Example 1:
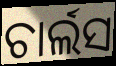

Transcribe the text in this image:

ଚାର୍ଲସ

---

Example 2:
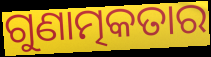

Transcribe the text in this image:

ଗୁଣାତ୍ମକତାର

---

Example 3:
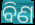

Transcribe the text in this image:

ବିଣ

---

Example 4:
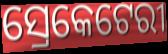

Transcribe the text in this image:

ସ୍ରେକେଟେରୀ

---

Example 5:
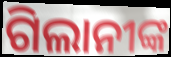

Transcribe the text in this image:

ଗିଲାନୀଙ୍କ